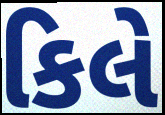
કિલે